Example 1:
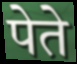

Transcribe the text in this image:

पेते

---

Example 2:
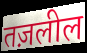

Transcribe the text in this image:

तज़लील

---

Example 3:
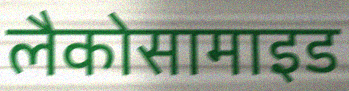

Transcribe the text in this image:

लैकोसामाइड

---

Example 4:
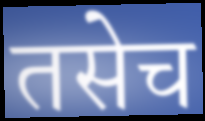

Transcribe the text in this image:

तसेच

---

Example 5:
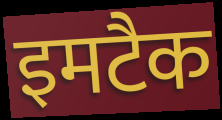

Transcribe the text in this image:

इमटैक